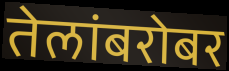
तेलांबरोबर